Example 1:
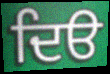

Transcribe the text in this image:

ਦਿੳ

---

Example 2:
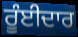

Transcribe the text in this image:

ਰੂੰਈਦਾਰ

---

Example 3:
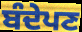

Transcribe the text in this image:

ਬੰਦੇਪਣ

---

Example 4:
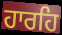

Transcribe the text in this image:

ਹਾਰਹਿ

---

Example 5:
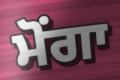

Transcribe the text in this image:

ਮੋਂਗਾ